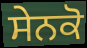
ਸੇਨਕੋ